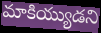
మాకియ్యుడని